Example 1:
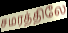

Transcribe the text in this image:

சமரத்திலே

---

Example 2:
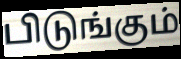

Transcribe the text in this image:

பிடுங்கும்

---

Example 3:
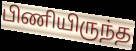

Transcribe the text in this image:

பிணியிருந்த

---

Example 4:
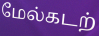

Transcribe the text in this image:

மேல்கடற்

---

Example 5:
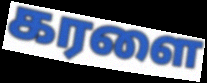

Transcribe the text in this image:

கரளை